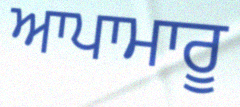
ਆਪਾਮਾਰੂ